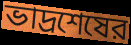
ভাদ্রশেষের